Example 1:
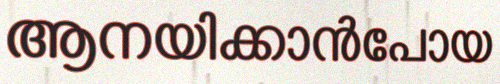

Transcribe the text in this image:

ആനയിക്കാൻപോയ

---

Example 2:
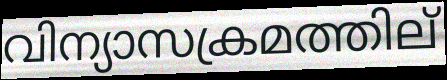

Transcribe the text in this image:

വിന്യാസക്രമത്തില്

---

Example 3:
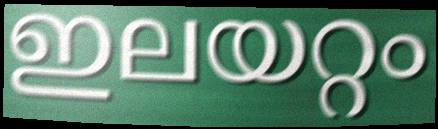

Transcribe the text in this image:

ഇലയറ്റം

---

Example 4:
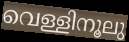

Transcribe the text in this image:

വെള്ളിനൂലു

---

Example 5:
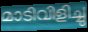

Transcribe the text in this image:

മാടിവിളിച്ചു